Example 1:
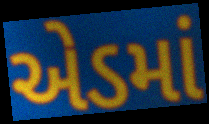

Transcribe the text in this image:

એડમાં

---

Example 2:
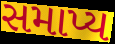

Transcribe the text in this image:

સમાપ્ય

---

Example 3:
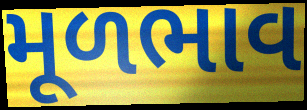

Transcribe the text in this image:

મૂળભાવ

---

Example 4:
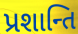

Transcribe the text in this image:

પ્રશાન્તિ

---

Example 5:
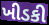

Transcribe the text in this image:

ખીડકી